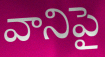
వానిపై